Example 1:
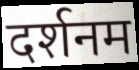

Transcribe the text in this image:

दर्शनम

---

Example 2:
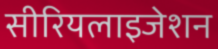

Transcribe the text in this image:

सीरियलाइजेशन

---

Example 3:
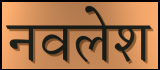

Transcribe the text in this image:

नवलेश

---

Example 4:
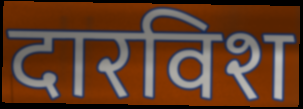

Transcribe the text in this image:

दारविश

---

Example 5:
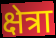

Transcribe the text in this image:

क्षेत्रा